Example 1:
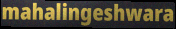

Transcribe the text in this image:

mahalingeshwara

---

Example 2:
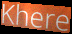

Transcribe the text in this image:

Khere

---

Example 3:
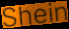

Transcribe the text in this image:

Shein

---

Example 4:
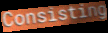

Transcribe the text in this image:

Consisting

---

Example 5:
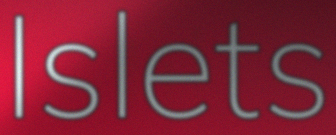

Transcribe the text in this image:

Islets